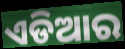
ଏଡିଆର